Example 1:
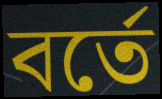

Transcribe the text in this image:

বর্তে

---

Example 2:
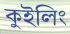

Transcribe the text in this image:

কুইলিং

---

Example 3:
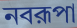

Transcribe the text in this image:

নবরূপা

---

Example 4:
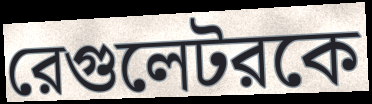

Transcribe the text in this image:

রেগুলেটরকে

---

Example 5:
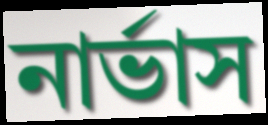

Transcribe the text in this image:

নার্ভাস